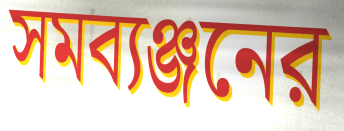
সমব্যঞ্জনের